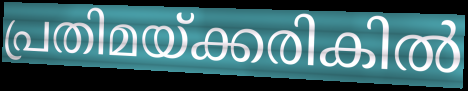
പ്രതിമയ്ക്കരികിൽ